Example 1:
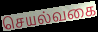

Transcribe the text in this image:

செயல்வகை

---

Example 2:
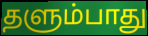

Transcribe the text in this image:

தளும்பாது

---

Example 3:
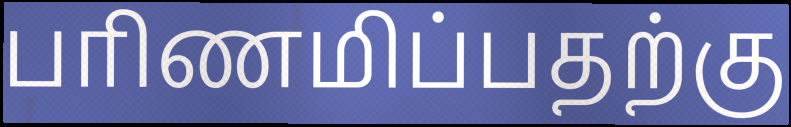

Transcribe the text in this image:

பரிணமிப்பதற்கு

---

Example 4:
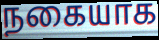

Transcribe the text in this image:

நகையாக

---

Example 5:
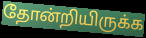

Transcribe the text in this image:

தோன்றியிருக்க